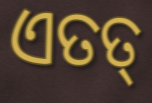
ଏତତ୍